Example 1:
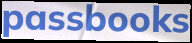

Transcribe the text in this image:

passbooks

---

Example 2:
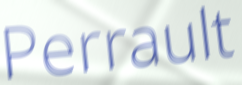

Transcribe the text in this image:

Perrault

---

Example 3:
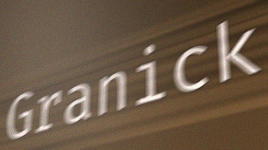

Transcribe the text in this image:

Granick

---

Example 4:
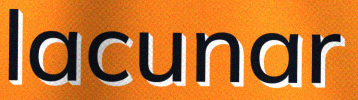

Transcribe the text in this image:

lacunar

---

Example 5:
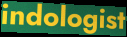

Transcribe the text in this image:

indologist